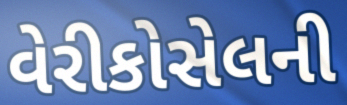
વેરીકોસેલની